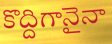
కొద్దిగానైనా